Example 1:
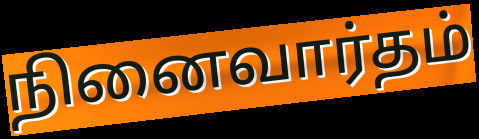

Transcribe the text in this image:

நினைவார்தம்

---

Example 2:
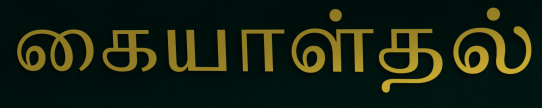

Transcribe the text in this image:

கையாள்தல்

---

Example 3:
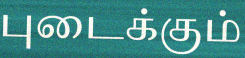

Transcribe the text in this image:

புடைக்கும்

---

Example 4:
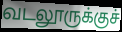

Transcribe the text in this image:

வடலூருக்குச்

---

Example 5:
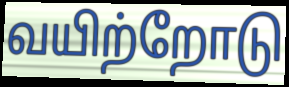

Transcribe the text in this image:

வயிற்றோடு